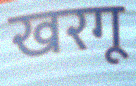
खरगू